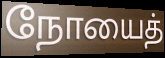
நோயைத்